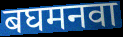
बघमनवा